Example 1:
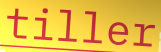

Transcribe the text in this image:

tiller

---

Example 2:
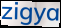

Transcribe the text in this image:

zigya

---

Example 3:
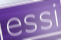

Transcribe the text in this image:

essi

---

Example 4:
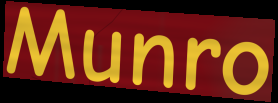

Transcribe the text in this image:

Munro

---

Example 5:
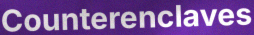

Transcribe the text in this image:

Counterenclaves